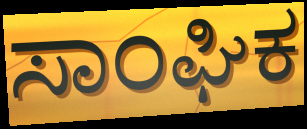
ಸಾಂಘಿಕ